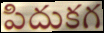
పిదుకగ